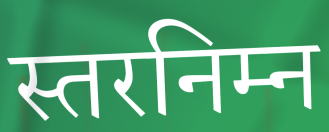
स्तरनिम्न